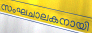
സംഘചാലകനായി